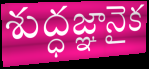
శుద్ధజ్ఞానైక